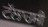
ਟੱਲਾਹਸੀ